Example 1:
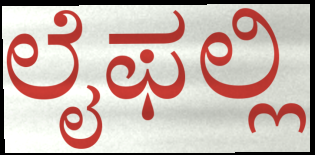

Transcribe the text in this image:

ಲೈಫಲ್ಲಿ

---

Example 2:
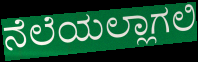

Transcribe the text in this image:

ನೆಲೆಯಲ್ಲಾಗಲಿ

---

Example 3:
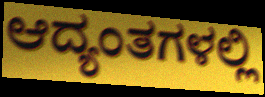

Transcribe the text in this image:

ಆದ್ಯಂತಗಳಲ್ಲಿ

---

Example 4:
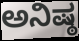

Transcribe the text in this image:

ಅನಿಷ್ಠ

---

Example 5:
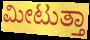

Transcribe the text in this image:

ಮೀಟುತ್ತಾ